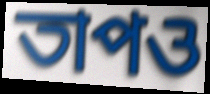
তাপও